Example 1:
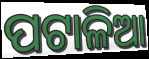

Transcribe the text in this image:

ପଟାଳିଆ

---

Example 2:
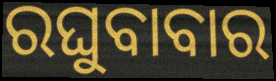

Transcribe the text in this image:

ରଘୁବାବାର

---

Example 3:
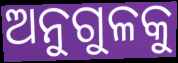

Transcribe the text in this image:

ଅନୁଗୁଳକୁ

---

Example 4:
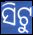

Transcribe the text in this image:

ସିଟୁ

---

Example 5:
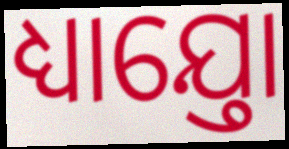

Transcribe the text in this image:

ଧ୍ୟାଯ୍ତୋ